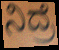
ನಿದ್ರೆ